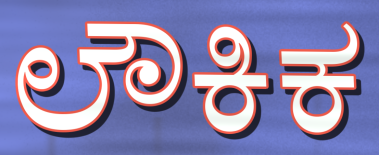
ಲೌಕಿಕ